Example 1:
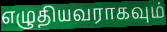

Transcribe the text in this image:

எழுதியவராகவும்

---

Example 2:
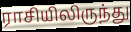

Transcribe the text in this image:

ராசியிலிருந்து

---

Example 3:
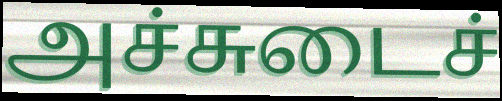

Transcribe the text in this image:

அச்சுடைச்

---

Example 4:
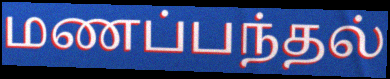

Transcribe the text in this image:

மணப்பந்தல்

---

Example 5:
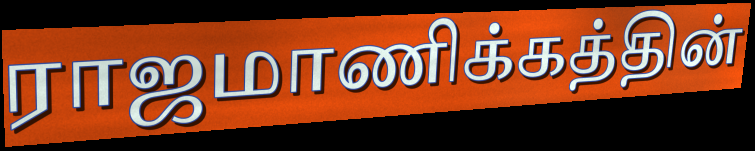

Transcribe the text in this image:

ராஜமாணிக்கத்தின்